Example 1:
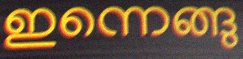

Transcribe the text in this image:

ഇന്നെങ്ങു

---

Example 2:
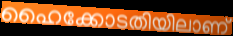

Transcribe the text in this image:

ഹൈക്കോടതിയിലാണ്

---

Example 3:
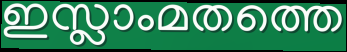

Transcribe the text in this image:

ഇസ്ലാംമതത്തെ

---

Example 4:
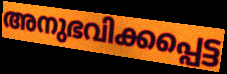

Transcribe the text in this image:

അനുഭവിക്കപ്പെട്ട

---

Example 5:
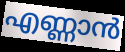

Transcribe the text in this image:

എണ്ണാൻ